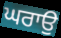
ਘਰਾਉ